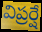
విప్రర్షే